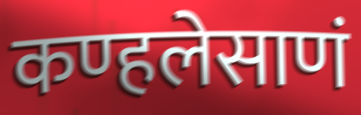
कण्हलेसाणं